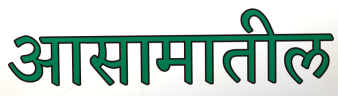
आसामातील